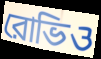
রোভিও